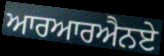
ਆਰਆਰਐਨਏ